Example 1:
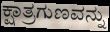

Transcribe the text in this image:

ಕ್ಷಾತ್ರಗುಣವನ್ನು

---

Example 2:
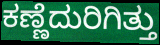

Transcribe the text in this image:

ಕಣ್ಣೆದುರಿಗಿತ್ತು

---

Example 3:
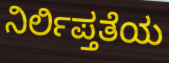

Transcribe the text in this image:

ನಿರ್ಲಿಪ್ತತೆಯ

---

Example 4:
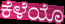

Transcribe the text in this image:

ಕೆಳೆಯೊ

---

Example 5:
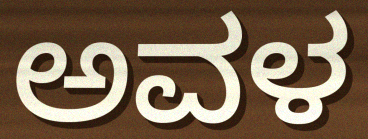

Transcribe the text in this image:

ಅವಳ